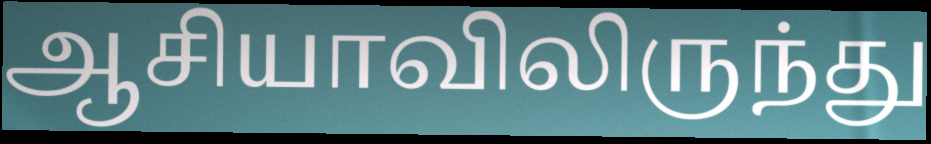
ஆசியாவிலிருந்து